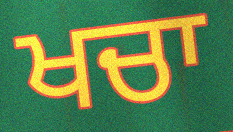
ਖਚਾ